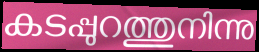
കടപ്പുറത്തുനിന്നു